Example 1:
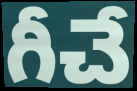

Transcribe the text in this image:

గీచే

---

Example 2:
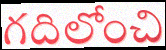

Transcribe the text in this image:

గదిలోంచి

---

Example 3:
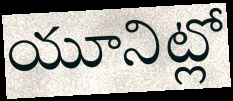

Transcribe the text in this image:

యూనిట్లో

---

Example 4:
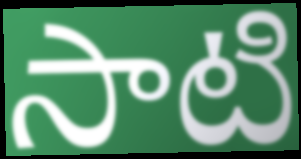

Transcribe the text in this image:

సాటి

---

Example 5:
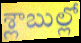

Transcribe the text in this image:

శ్లాబుల్లో